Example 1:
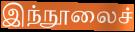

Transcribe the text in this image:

இந்நூலைச்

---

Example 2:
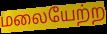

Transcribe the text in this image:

மலையேற்ற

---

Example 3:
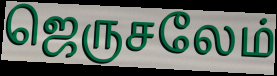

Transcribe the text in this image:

ஜெருசலேம்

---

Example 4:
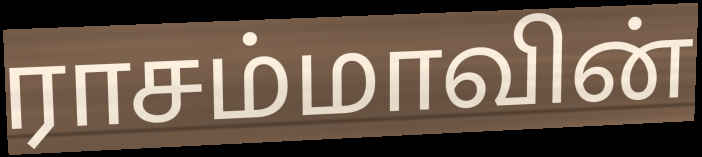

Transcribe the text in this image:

ராசம்மாவின்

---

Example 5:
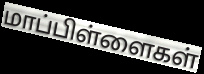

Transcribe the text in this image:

மாப்பிள்ளைகள்